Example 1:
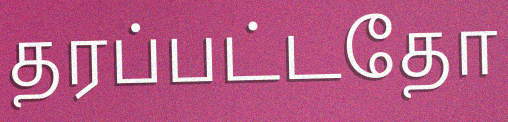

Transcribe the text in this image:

தரப்பட்டதோ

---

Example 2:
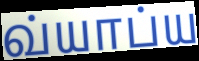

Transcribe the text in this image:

வ்யாப்ய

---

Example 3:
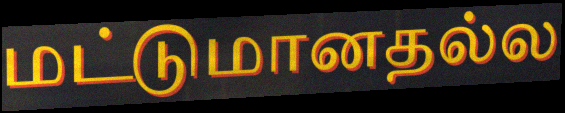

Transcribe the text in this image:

மட்டுமானதல்ல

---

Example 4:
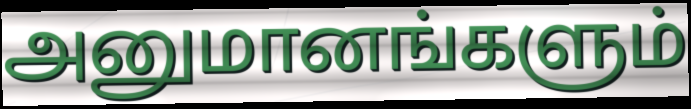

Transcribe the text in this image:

அனுமானங்களும்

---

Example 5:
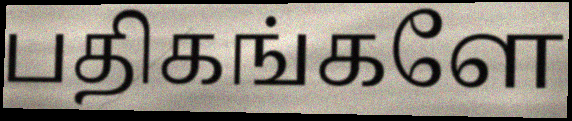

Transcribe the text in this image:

பதிகங்களே